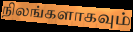
நிலங்களாகவும்